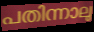
പതിന്നാലു